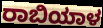
ರಾಬಿಯಾಳ